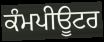
ਕੰਮਪੀਊਟਰ